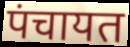
पंचायत